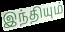
இந்தியும்